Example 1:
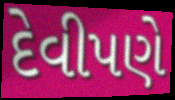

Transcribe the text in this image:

દેવીપણે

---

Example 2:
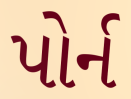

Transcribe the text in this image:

પોર્ન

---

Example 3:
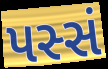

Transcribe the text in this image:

પસ્સં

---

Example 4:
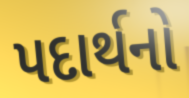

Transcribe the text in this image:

પદાર્થનો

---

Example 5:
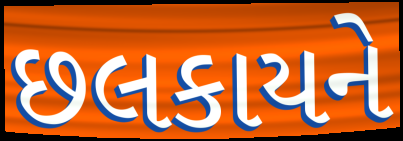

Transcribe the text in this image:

છલકાયને